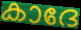
കാദേ